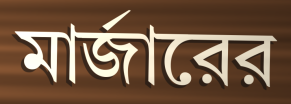
মার্জারের